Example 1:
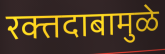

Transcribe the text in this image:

रक्तदाबामुळे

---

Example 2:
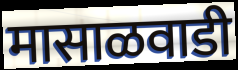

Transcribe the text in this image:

मासाळवाडी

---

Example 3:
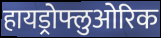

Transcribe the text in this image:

हायड्रोफ्लुओरिक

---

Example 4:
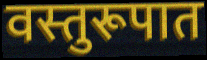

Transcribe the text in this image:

वस्तुरूपात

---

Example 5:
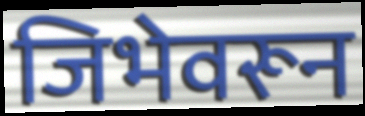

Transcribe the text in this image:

जिभेवरून